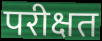
परीक्षत